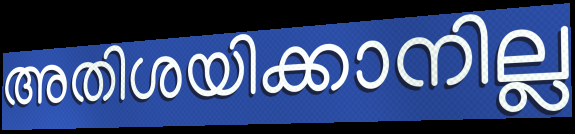
അതിശയിക്കാനില്ല